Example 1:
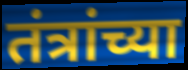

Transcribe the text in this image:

तंत्रांच्या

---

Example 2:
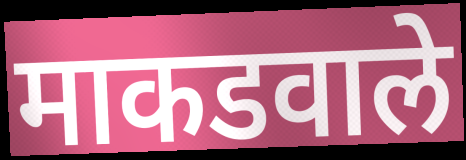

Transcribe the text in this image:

माकडवाले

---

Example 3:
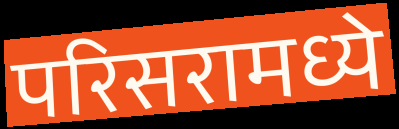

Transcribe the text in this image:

परिसरामध्ये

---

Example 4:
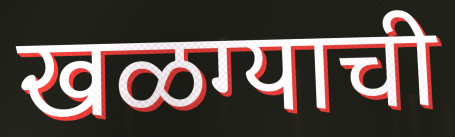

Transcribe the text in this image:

खळग्याची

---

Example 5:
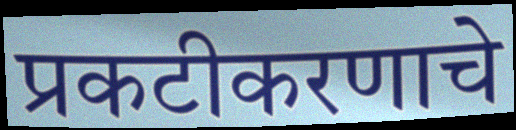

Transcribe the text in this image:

प्रकटीकरणाचे